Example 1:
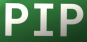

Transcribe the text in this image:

PIP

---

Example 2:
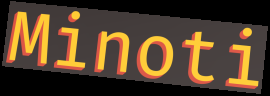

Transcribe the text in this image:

Minoti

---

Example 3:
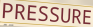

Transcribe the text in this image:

PRESSURE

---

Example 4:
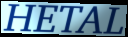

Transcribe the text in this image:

HETAL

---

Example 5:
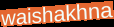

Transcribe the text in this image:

waishakhna